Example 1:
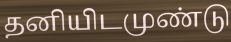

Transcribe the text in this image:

தனியிடமுண்டு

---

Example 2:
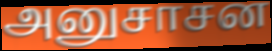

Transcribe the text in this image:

அனுசாசன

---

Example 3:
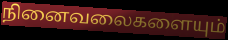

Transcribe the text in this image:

நினைவலைகளையும்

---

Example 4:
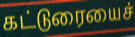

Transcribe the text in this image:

கட்டுரையைச்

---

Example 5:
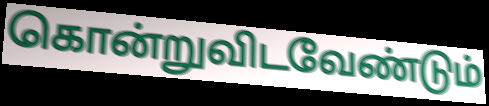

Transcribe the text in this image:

கொன்றுவிடவேண்டும்